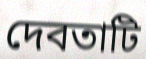
দেবতাটি